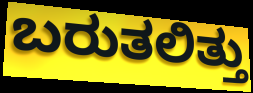
ಬರುತಲಿತ್ತು